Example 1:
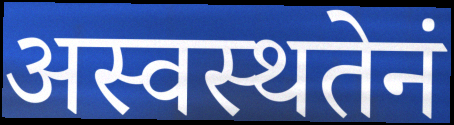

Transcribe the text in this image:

अस्वस्थतेनं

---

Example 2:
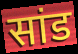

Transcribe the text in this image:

सांड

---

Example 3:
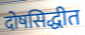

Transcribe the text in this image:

दोषसिद्धीत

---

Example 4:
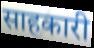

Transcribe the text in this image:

साहकारी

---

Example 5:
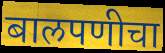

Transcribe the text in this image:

बालपणीचा